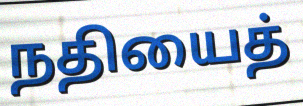
நதியைத்